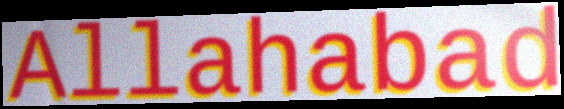
Allahabad